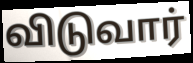
விடுவார்